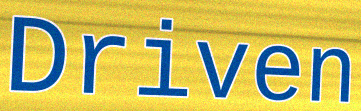
Driven